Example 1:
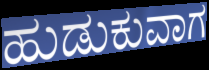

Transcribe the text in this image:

ಹುಡುಕುವಾಗ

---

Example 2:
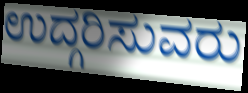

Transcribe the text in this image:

ಉದ್ಗರಿಸುವರು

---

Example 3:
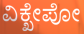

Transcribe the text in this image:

ವಿಕ್ಖೇಪೋ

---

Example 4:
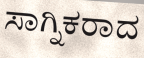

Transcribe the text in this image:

ಸಾಗ್ನಿಕರಾದ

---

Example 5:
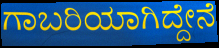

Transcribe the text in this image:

ಗಾಬರಿಯಾಗಿದ್ದೇನೆ